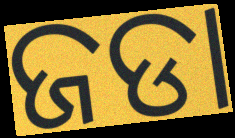
ଜଡା